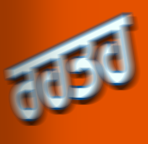
ਰਹਤਹ